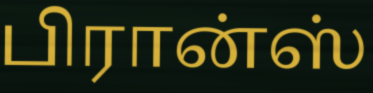
பிரான்ஸ்